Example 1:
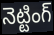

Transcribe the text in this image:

నెట్టింగ్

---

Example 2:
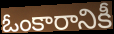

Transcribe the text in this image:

ఓంకారానికీ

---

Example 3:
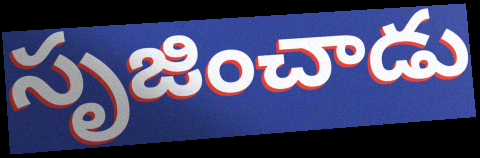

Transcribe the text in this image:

సృజించాడు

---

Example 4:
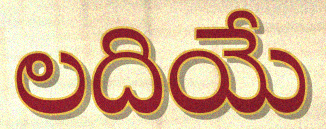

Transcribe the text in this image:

లదియే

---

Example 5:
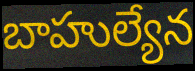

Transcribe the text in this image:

బాహుల్యేన